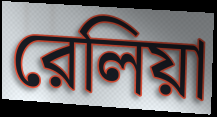
রেলিয়া